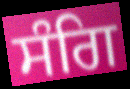
ਸੰਗਿ